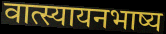
वात्स्यायनभाष्य